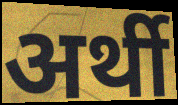
अर्थी